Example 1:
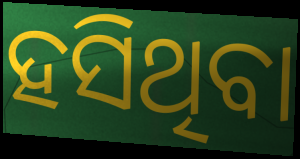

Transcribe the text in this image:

ହସିଥିବା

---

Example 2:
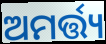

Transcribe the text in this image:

ଅମର୍ତ୍ତ୍ୟ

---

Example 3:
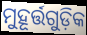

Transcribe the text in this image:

ମୁହୂର୍ତ୍ତଗୁଡ଼ିକ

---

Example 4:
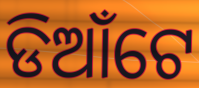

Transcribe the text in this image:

ଡିଆଁଟେ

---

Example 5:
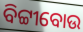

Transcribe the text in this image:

ବିଟ୍ଟୀବୋଉ